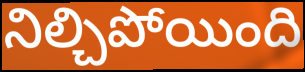
నిల్చిపోయింది